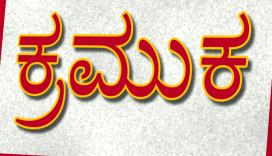
ಕ್ರಮುಕ